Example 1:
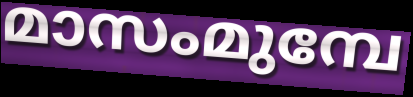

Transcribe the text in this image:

മാസംമുമ്പേ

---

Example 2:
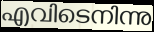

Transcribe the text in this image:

എവിടെനിന്നു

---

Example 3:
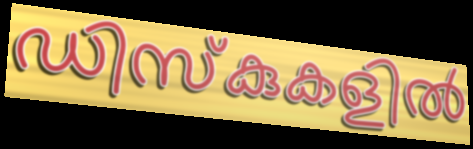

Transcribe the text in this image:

ഡിസ്കുകളിൽ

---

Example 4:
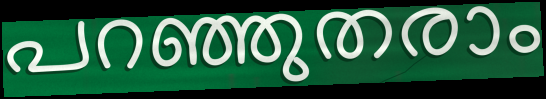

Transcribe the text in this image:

പറഞ്ഞുതരാം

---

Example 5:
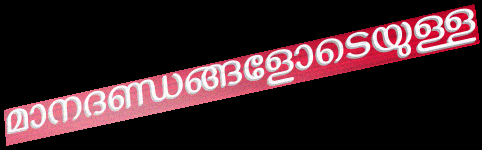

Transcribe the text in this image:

മാനദണ്ഡങ്ങളോടെയുള്ള